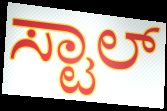
ಸ್ಟಾಲ್